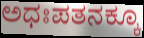
ಅಧಃಪತನಕ್ಕೂ